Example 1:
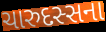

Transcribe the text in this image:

ચારુદસ્સના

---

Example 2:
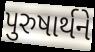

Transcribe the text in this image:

પુરુષાર્થને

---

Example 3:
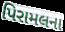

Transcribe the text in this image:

પિરામલના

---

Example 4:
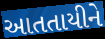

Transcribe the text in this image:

આતતાયીને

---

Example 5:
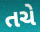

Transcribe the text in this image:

તચે